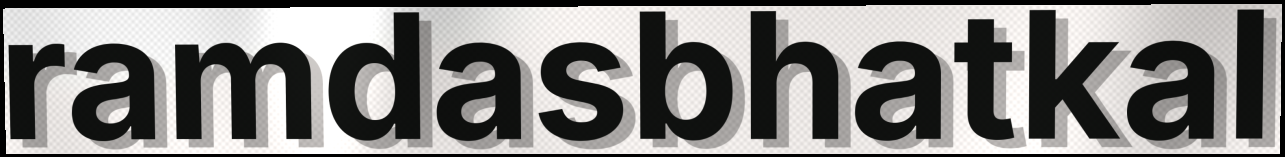
ramdasbhatkal